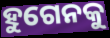
ହୁଗେନକୁ